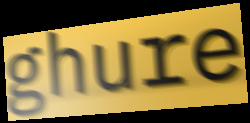
ghure